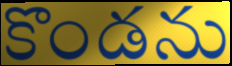
కొండను